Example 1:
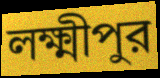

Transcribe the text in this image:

লক্ষ্মীপুর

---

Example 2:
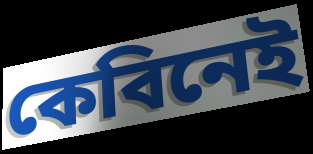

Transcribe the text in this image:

কেবিনেই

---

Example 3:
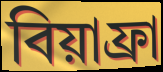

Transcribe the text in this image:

বিয়াফ্রা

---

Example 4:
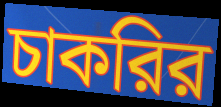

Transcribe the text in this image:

চাকরির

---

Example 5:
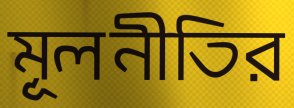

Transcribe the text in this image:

মূলনীতির